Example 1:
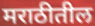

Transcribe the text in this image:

मराठीतील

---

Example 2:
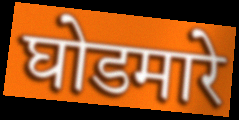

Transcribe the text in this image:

घोडमारे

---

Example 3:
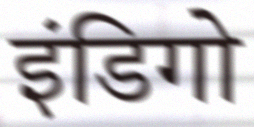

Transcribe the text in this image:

इंडिगो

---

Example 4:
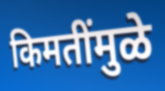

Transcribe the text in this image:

किमतींमुळे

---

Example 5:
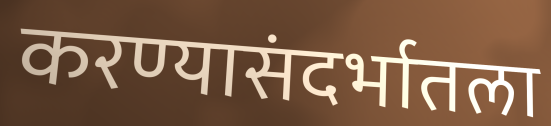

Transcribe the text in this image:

करण्यासंदर्भातला